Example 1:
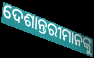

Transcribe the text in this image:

ଦେଶାନ୍ତରୀମାନଙ୍କୁ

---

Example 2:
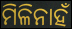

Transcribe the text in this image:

ମିଳିନାହଁ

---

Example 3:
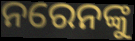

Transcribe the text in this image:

ନରେନଙ୍କୁ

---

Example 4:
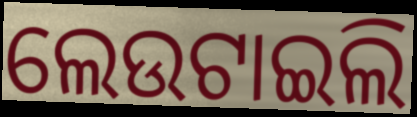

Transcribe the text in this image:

ଲେଉଟାଇଲି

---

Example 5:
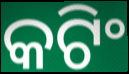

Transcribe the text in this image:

କଟିଂ